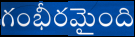
గంభీరమైంది